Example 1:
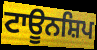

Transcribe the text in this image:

ਟਾਊਨਸ਼ਿਪ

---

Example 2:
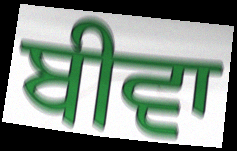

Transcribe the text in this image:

ਬੀਵਾ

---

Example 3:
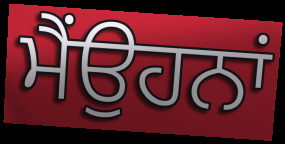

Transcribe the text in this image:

ਮੈਂਉਹਨਾਂ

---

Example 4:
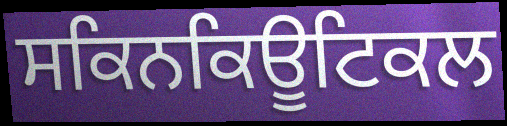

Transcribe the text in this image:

ਸਕਿਨਕਿਊਟਿਕਲ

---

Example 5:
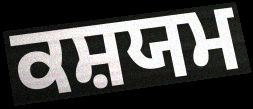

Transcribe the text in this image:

ਕਸ਼ਯਮ